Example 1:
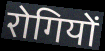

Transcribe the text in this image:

रोगियों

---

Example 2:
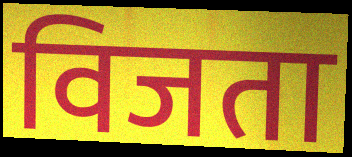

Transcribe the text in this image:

विजता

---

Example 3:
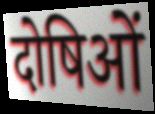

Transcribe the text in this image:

दोषिओं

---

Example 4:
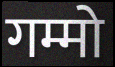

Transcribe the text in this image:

गम्मो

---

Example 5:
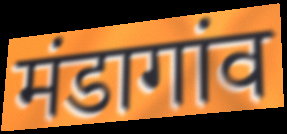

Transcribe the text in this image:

मंडागांव